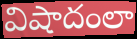
విషాదంలా